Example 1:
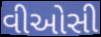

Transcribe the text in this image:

વીઓસી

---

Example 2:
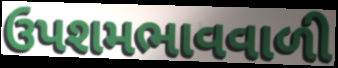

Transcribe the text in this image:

ઉપશમભાવવાળી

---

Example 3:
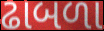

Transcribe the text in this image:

ઢાબળા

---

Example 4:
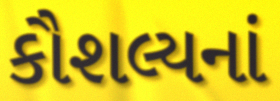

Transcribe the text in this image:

કૌશલ્યનાં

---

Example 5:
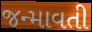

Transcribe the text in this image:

જન્માવતી